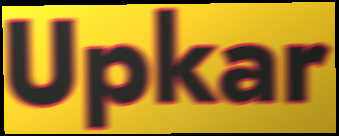
Upkar